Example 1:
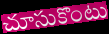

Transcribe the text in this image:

చూసుకొంటు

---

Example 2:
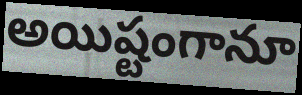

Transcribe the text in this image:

అయిష్టంగానూ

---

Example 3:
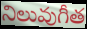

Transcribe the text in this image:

నిలువుగీత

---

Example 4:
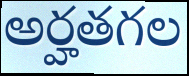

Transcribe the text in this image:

అర్హతగల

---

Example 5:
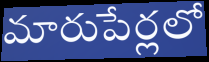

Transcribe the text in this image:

మారుపేర్లలో